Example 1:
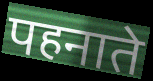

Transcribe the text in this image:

पहनाते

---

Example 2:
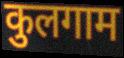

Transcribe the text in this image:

कुलगाम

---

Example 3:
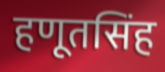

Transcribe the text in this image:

हणूतसिंह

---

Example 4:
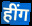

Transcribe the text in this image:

हींग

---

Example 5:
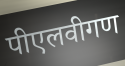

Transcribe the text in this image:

पीएलवीगण